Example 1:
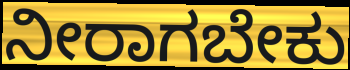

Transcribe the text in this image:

ನೀರಾಗಬೇಕು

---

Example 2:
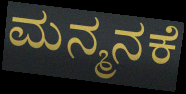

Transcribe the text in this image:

ಮನ್ಮನಕೆ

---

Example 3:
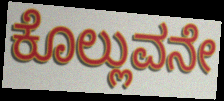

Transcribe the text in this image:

ಕೊಲ್ಲುವನೇ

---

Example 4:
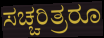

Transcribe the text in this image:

ಸಚ್ಚರಿತ್ರರೂ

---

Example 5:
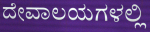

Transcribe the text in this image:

ದೇವಾಲಯಗಳಲ್ಲಿ